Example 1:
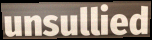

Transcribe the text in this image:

unsullied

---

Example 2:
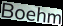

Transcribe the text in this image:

Boehm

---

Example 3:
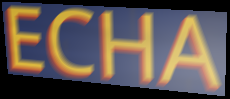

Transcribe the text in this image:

ECHA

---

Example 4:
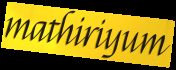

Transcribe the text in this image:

mathiriyum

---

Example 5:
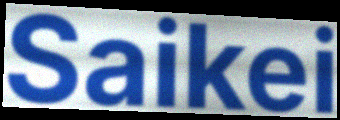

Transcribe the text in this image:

Saikei